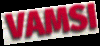
VAMSI